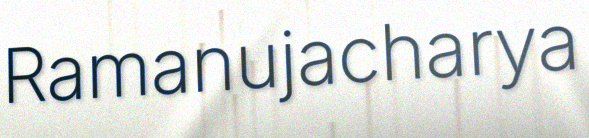
Ramanujacharya